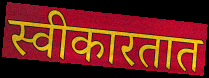
स्वीकारतात